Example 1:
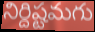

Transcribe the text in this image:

నిర్దిష్టమగు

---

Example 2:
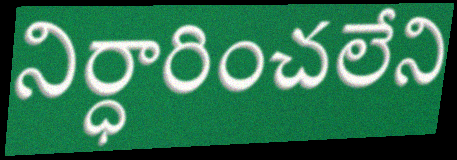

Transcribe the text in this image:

నిర్ధారించలేని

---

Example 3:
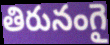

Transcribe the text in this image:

తిరునంగై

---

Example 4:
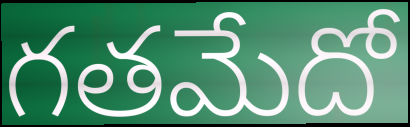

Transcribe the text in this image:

గతమేదో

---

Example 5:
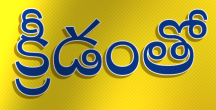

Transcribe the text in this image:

క్రీడంతో